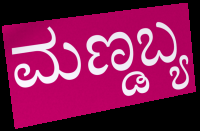
ಮಣ್ಡಬ್ಯ